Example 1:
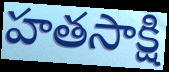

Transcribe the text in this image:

హతసాక్షి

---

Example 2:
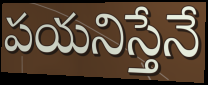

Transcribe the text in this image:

పయనిస్తేనే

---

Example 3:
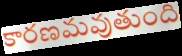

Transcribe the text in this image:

కారణమవుతుంది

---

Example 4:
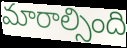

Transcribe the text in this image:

మారాల్సింది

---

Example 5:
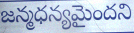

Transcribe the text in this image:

జన్మధన్యమైందని